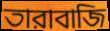
তারাবাজি